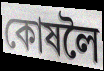
কোষলৈ